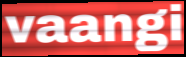
vaangi